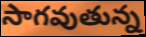
సాగవుతున్న